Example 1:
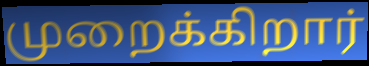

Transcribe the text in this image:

முறைக்கிறார்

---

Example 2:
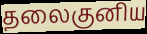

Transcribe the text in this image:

தலைகுனிய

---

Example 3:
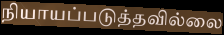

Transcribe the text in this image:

நியாயப்படுத்தவில்லை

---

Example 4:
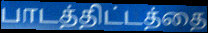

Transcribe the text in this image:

பாடத்திட்டத்தை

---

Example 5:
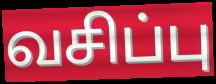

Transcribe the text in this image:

வசிப்பு